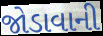
જોડાવાની